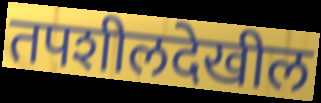
तपशीलदेखील